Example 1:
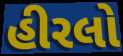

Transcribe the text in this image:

હીરલો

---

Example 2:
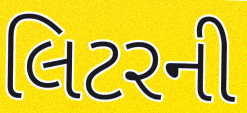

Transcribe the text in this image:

લિટરની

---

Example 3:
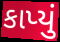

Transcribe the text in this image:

કાપ્યું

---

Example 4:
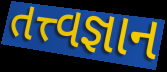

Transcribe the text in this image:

તત્ત્વજ્ઞાન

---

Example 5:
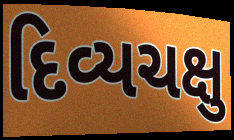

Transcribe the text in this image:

દિવ્યચક્ષુ